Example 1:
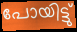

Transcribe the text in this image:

പോയിട്ടു്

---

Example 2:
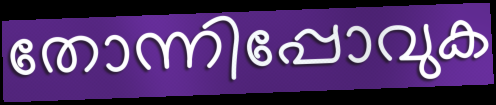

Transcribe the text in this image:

തോന്നിപ്പോവുക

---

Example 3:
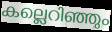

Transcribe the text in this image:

കല്ലെറിഞ്ഞും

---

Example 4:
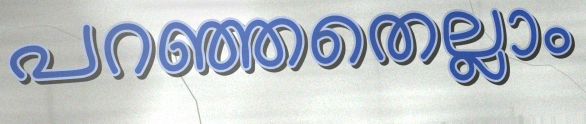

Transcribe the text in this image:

പറഞ്ഞതെല്ലാം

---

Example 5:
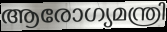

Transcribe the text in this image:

ആരോഗ്യമന്ത്രി